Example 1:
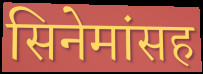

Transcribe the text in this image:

सिनेमांसह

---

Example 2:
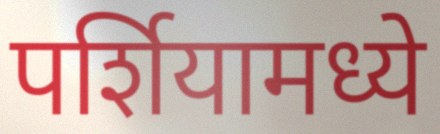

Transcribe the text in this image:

पर्शियामध्ये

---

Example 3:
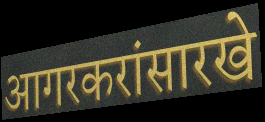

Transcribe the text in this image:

आगरकरांसारखे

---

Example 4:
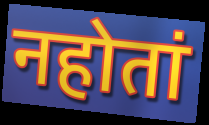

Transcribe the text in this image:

नहोतां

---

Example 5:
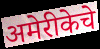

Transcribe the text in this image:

अमेरीकेचे